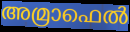
അമ്രാഫെൽ